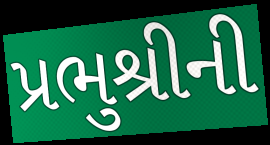
પ્રભુશ્રીની